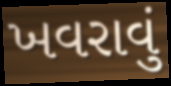
ખવરાવું